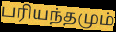
பரியந்தமும்